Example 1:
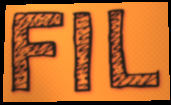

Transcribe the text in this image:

FIL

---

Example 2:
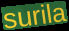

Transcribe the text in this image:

surila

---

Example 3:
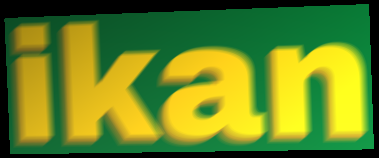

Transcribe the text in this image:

ikan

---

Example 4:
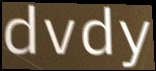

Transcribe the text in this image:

dvdy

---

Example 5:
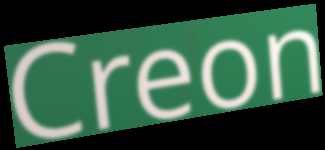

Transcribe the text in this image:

Creon